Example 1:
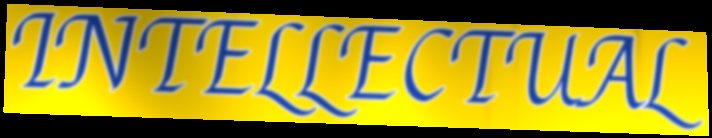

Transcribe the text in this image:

INTELLECTUAL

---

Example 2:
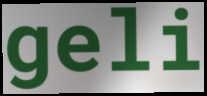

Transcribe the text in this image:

geli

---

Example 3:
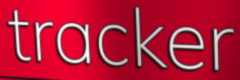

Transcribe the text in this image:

tracker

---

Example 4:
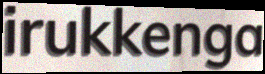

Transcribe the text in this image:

irukkenga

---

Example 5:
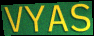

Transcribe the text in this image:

VYAS